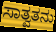
ಸಾತ್ವತನು